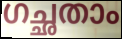
ഗച്ഛതാം